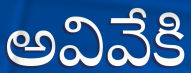
అవివేకి